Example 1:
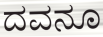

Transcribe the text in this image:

ದವನೂ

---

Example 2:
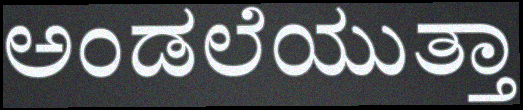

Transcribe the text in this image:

ಅಂಡಲೆಯುತ್ತಾ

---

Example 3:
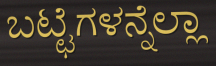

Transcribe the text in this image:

ಬಟ್ಟೆಗಳನ್ನೆಲ್ಲಾ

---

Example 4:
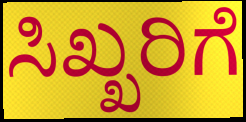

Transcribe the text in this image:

ಸಿಖ್ಖರಿಗೆ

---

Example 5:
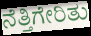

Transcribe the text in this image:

ನೆತ್ತಿಗೇರಿತು